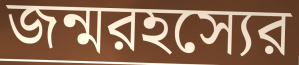
জন্মরহস্যের